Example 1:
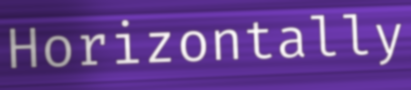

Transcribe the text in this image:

Horizontally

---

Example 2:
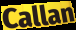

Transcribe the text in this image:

Callan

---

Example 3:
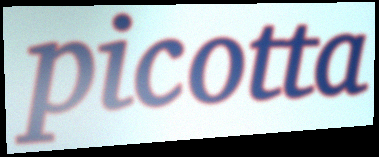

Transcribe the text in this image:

picotta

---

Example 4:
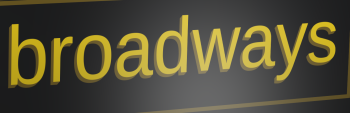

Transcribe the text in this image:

broadways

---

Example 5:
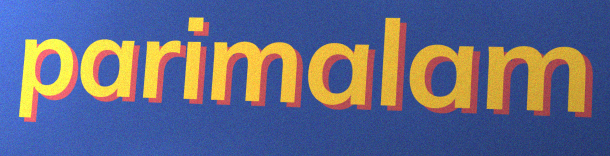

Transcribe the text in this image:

parimalam